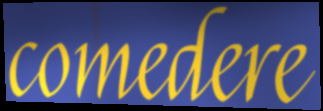
comedere